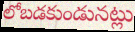
లోబడకుండునట్లు